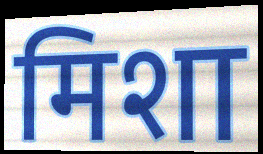
मिशा